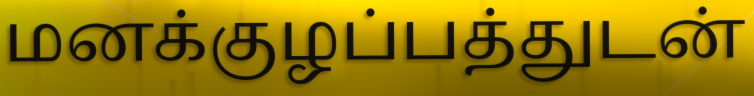
மனக்குழப்பத்துடன்